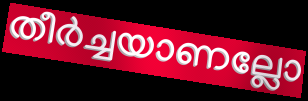
തീർച്ചയാണല്ലോ